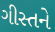
ગીસ્તને